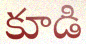
కూడి